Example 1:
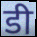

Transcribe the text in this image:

डी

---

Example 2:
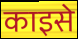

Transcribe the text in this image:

काइसे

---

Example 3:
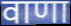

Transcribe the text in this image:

वाणा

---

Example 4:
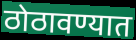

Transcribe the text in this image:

ठोठावण्यात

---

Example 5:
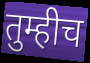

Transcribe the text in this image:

तुम्हीच